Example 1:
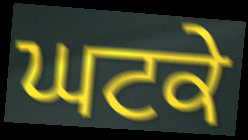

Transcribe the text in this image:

ਘਟਕੇ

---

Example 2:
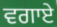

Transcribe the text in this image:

ਵਗਾਏ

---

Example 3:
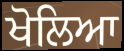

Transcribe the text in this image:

ਖੋਲਿਆ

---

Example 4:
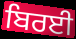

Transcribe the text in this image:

ਬਿਰਈ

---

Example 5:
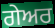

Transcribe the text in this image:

ਗੇਅਰ